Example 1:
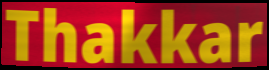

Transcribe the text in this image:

Thakkar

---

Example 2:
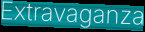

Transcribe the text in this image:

Extravaganza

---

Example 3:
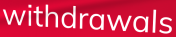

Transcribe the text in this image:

withdrawals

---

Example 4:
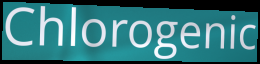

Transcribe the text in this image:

Chlorogenic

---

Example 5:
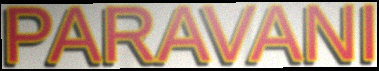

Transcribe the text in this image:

PARAVANI